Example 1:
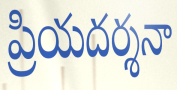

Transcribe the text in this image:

ప్రియదర్శనా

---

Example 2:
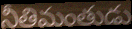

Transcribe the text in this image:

నీతిమంతుడు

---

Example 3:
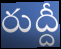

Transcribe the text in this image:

రుద్దీ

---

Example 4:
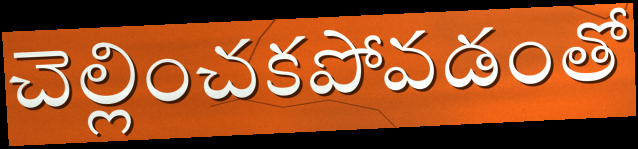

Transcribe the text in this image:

చెల్లించకపోవడంతో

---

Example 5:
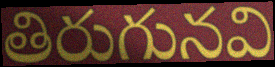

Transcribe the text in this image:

తిరుగునవి